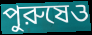
পুৰুষেও